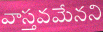
వాస్తవమేనని